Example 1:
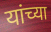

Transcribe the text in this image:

यांच्‍या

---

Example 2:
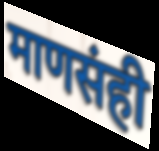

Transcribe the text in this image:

माणसंही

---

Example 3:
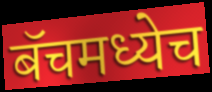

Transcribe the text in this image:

बॅचमध्येच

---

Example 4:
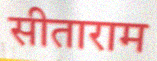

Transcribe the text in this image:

सीताराम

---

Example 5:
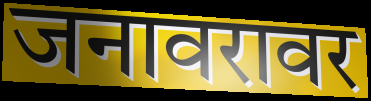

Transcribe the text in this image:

जनावरावर